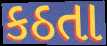
કઠતા